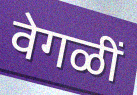
वेगळीं